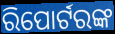
ରିପୋର୍ଟରଙ୍କ